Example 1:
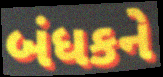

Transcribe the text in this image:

બંધકને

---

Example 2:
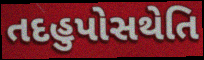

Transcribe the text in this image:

તદહુપોસથેતિ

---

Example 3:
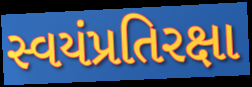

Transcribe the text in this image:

સ્વયંપ્રતિરક્ષા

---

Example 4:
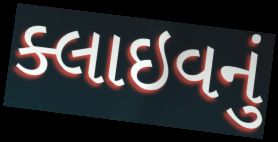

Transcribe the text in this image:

ક્લાઇવનું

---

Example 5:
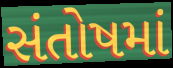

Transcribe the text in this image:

સંતોષમાં